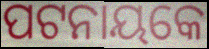
ପଟନାୟକେ